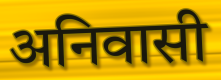
अनिवासी